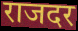
राजदर